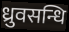
ध्रुवसन्धि